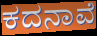
ಕದನಾವೆ